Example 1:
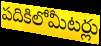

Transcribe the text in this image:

పదికిలోమీటర్లు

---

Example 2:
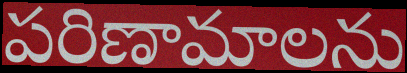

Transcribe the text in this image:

పరిణామాలను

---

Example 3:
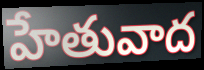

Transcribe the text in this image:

హేతువాద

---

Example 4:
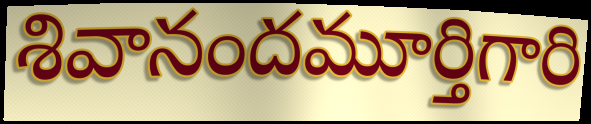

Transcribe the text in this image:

శివానందమూర్తిగారి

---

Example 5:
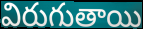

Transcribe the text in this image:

విరుగుతాయి